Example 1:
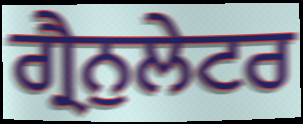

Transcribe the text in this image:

ਗ੍ਰੈਨੁਲੇਟਰ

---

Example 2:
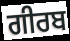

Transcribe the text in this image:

ਗੀਰਬ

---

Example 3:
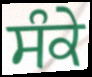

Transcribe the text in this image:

ਸੰਕੇ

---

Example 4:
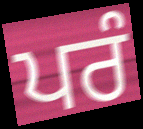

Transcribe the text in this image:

ਪਰੰ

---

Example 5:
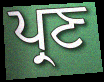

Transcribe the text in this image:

ਪ੍ਰਣ